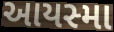
આયસ્મા